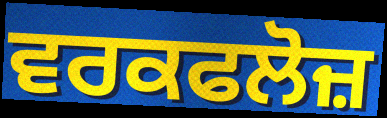
ਵਰਕਫਲੋਜ਼